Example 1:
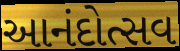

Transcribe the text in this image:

આનંદોત્સવ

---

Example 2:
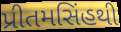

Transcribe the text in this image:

પ્રીતમસિંહથી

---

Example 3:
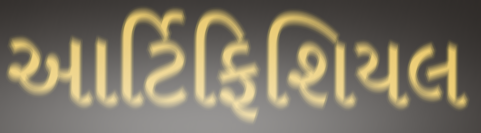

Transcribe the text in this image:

આર્ટિફિશિયલ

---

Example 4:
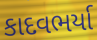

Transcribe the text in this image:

કાદવભર્યા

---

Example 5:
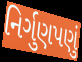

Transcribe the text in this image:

નિર્ગુણપણું